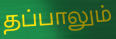
தப்பாலும்